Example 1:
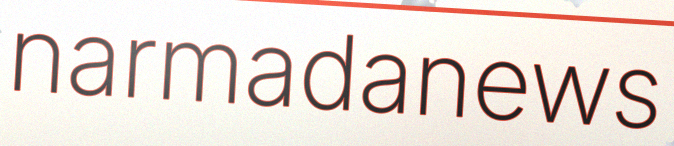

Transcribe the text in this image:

narmadanews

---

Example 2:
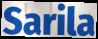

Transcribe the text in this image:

Sarila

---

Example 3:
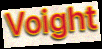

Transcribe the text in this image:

Voight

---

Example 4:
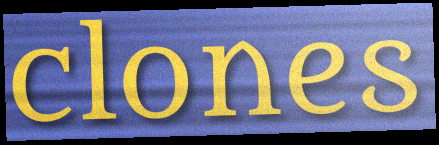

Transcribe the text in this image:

clones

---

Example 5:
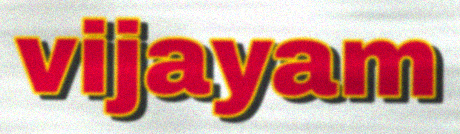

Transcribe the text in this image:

vijayam